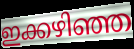
ഇക്കഴിഞ്ഞ